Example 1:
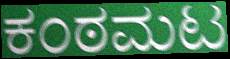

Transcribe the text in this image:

ಕಂಠಮಟ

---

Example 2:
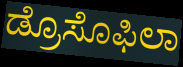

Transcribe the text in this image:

ಡ್ರೊಸೊಫಿಲಾ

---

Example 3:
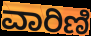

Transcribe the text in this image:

ವಾರಿಣಿ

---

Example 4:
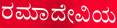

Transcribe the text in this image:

ರಮಾದೇವಿಯ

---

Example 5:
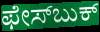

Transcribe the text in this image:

ಫೇಸ್‍ಬುಕ್